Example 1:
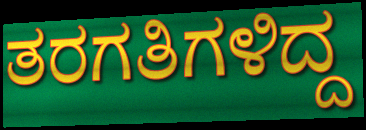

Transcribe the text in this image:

ತರಗತಿಗಳಿದ್ದ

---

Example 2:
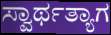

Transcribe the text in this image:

ಸ್ವಾರ್ಥತ್ಯಾಗ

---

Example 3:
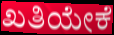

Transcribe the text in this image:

ಖತಿಯೇಕೆ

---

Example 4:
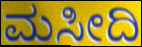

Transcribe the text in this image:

ಮಸೀದಿ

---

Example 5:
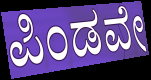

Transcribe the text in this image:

ಪಿಂಡವೇ